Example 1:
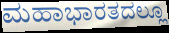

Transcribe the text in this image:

ಮಹಾಭಾರತದಲ್ಲೂ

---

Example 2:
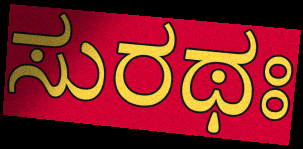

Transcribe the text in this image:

ಸುರಥಃ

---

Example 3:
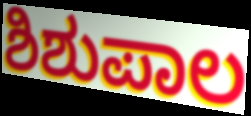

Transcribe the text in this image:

ಶಿಶುಪಾಲ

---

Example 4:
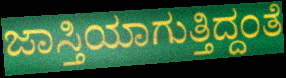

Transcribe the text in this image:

ಜಾಸ್ತಿಯಾಗುತ್ತಿದ್ದಂತೆ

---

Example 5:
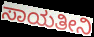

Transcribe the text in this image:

ಸಾಯತೀನಿ